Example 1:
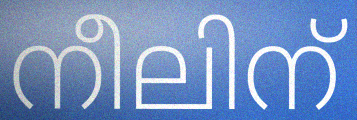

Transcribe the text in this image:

നീലിന്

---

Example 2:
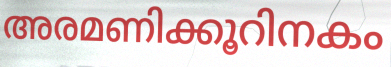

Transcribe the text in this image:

അരമണിക്കൂറിനകം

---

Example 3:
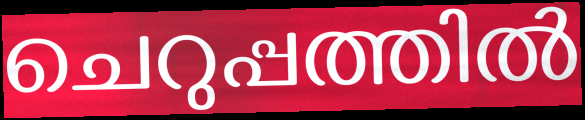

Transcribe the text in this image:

ചെറുപ്പത്തിൽ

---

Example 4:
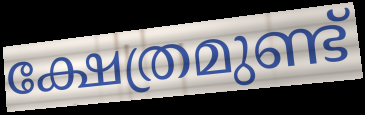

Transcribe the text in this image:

ക്ഷേത്രമുണ്ട്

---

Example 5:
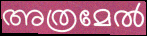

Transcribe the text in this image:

അത്രമേൽ